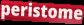
peristome